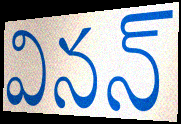
వినన్